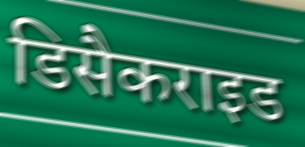
डिसैकराइड